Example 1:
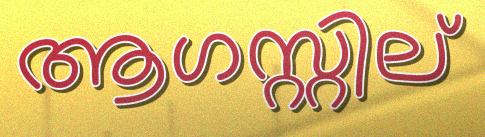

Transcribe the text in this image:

ആഗസ്റ്റില്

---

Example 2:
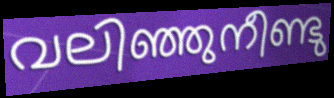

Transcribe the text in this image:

വലിഞ്ഞുനീണ്ടു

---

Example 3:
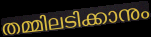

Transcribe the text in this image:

തമ്മിലടിക്കാനും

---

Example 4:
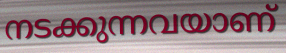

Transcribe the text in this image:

നടക്കുന്നവയാണ്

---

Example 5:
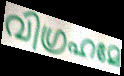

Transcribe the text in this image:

വിഗ്രഹമേ